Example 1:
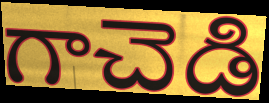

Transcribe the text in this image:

గాచెడి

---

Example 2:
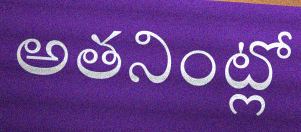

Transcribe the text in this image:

అతనింట్లో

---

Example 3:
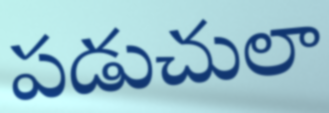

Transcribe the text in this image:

పడుచులా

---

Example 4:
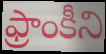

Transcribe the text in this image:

ఫ్రాంకీని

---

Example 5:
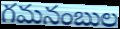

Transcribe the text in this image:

గమనంబుల